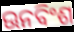
ଊନବିଂଶ